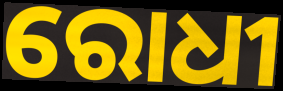
ରୋଧୀ